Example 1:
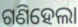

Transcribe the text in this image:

ଗଣିହେଲା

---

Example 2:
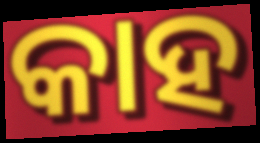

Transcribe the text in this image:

କାହ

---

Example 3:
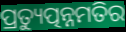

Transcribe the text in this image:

ପ୍ରତ୍ୟୁତ୍ପନ୍ନମତିର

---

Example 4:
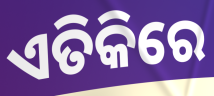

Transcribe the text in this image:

ଏତିକିରେ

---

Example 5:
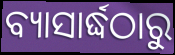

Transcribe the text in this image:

ବ୍ୟାସାର୍ଦ୍ଧଠାରୁ